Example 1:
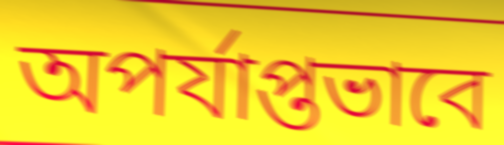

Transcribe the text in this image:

অপর্যাপ্তভাবে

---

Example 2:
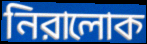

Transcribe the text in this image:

নিরালোক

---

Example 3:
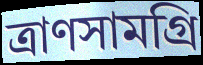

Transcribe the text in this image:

ত্রাণসামগ্রি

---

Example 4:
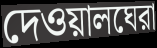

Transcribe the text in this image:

দেওয়ালঘেরা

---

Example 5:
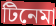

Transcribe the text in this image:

টিনেমা